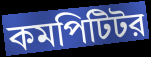
কমপিটিটর